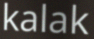
kalak